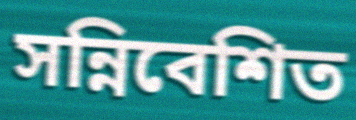
সন্নিবেশিত